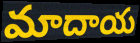
మాదాయ